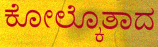
ಕೋಲ್ಕೊತಾದ